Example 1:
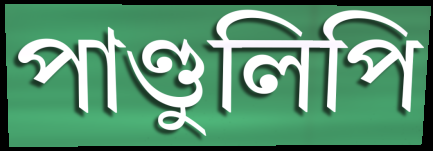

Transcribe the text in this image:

পাণ্ডুলিপি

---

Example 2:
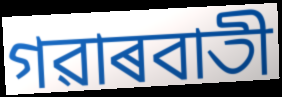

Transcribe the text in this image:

গৱাৰবাতী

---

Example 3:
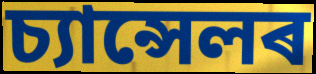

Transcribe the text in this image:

চ্যান্সেলৰ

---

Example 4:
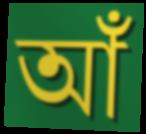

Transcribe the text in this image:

আঁ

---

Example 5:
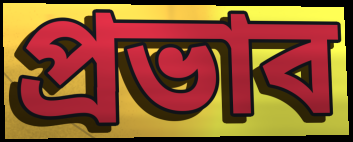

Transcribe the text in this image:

প্ৰভাব